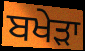
ਬਖੇੜਾ